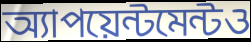
অ্যাপয়েন্টমেন্টও